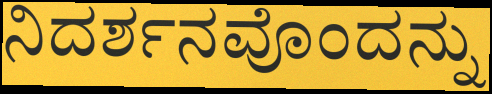
ನಿದರ್ಶನವೊಂದನ್ನು